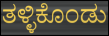
ತಳ್ಳಿಕೊಂಡು